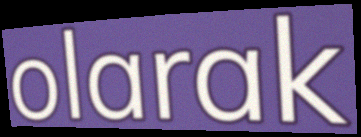
olarak